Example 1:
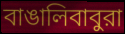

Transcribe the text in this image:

বাঙালিবাবুরা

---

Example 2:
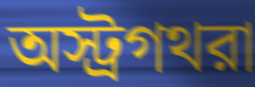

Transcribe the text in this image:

অস্ট্রগথরা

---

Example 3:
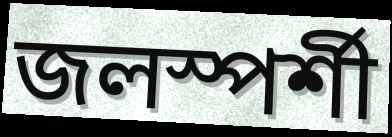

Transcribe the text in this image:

জলস্পর্শী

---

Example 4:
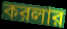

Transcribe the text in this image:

করলার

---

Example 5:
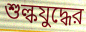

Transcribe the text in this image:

শুল্কযুদ্ধের